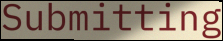
Submitting